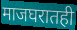
माजघरातही